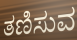
ತಣಿಸುವ